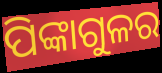
ପିଙ୍କାଗୁଳର